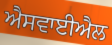
ਐਸਵਾਈਐਲ